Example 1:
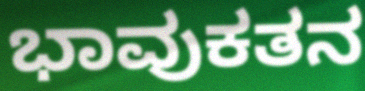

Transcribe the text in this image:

ಭಾವುಕತನ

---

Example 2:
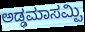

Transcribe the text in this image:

ಅಡ್ಢಮಾಸಮ್ಪಿ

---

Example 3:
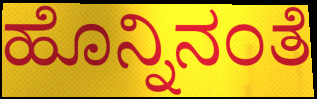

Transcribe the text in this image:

ಹೊನ್ನಿನಂತೆ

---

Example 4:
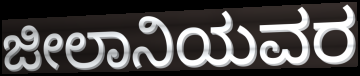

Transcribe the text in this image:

ಜೀಲಾನಿಯವರ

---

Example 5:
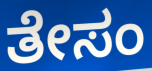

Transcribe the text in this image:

ತೇಸಂ